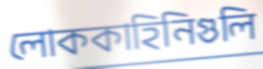
লোককাহিনিগুলি